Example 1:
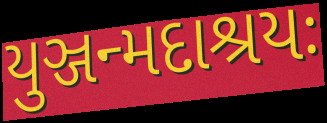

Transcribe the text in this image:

યુઞ્જન્મદાશ્રયઃ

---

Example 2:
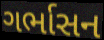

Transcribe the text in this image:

ગર્ભાસન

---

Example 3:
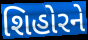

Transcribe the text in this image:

શિહોરને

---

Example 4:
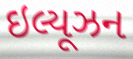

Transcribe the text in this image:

ઇલ્યૂઝન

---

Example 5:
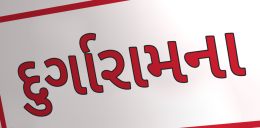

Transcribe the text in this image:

દુર્ગારામના